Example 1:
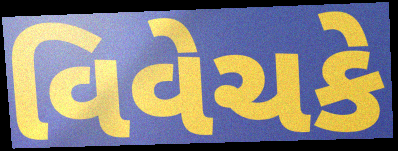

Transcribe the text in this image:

વિવેચકે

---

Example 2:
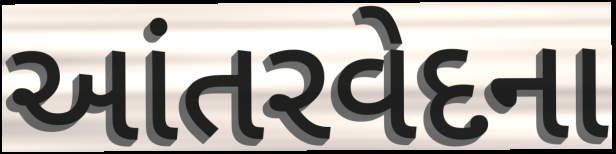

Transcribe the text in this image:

આંતરવેદના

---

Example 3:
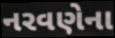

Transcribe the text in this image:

નરવણેના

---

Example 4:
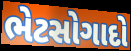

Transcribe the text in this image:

ભેટસોગાદો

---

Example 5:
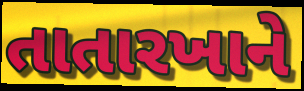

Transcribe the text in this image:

તાતારખાને